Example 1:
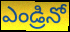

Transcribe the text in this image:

ఎండ్రినో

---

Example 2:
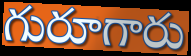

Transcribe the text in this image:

గురూగారు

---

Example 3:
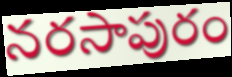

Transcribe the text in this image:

నరసాపురం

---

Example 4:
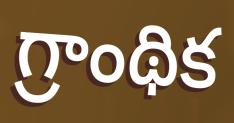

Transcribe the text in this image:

గ్రాంథిక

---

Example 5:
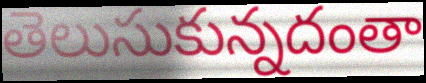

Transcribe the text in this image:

తెలుసుకున్నదంతా